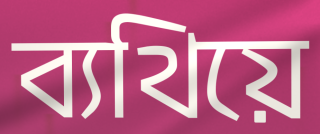
ব্যথিয়ে